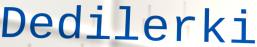
Dedilerki